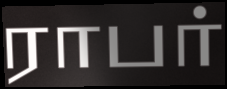
ராபர்